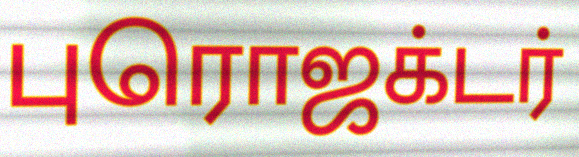
புரொஜக்டர்